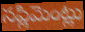
సప్లిమెంట్లు